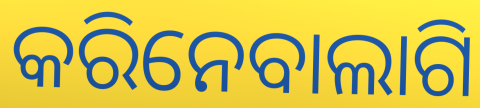
କରିନେବାଲାଗି